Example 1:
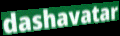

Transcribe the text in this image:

dashavatar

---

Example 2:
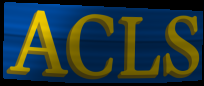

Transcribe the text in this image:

ACLS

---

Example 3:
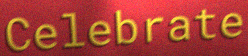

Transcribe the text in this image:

Celebrate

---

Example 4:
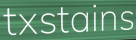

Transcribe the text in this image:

txstains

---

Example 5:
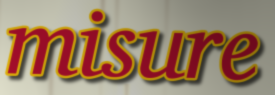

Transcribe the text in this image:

misure